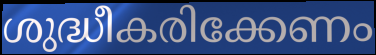
ശുദ്ധീകരിക്കേണം